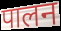
पालन